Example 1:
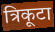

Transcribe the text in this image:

त्रिकूटा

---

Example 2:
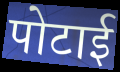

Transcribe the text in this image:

पोटाई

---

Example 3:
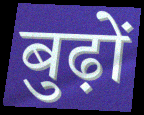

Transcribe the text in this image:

बुढ़ों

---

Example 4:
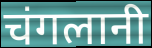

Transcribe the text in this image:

चंगलानी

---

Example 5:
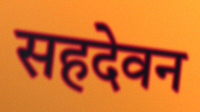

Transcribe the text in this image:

सहदेवन